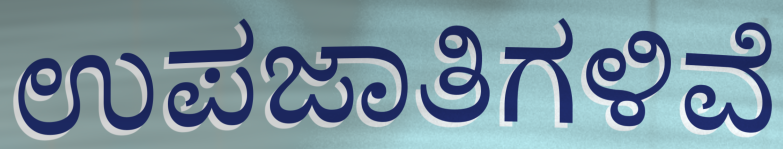
ಉಪಜಾತಿಗಳಿವೆ